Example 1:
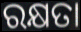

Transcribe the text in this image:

ରକ୍ଷତା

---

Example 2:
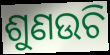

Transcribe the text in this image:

ଶୁଣଉଚି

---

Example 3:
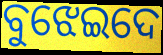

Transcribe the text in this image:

ବୁଝେଇଦେ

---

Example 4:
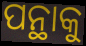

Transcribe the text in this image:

ପନ୍ଥାକୁ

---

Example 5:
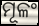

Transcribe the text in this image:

ମୂଳଂ